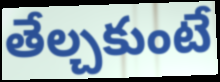
తేల్చకుంటే